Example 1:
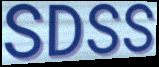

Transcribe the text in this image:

SDSS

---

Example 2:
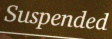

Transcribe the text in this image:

Suspended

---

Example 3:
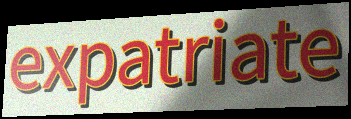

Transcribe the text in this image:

expatriate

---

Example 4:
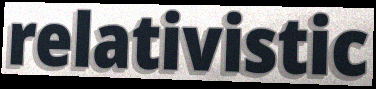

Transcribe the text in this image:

relativistic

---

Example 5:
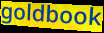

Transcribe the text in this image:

goldbook